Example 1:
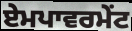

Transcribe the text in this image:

ਏਮਪਾਵਰਮੇਂਟ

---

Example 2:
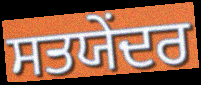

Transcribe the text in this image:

ਸਤਯੇਂਦਰ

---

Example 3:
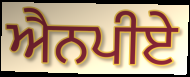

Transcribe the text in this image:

ਐਨਪੀਏ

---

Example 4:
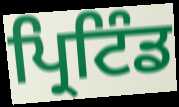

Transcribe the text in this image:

ਪ੍ਰਿਟਿੰਡ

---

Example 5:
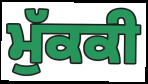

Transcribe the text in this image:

ਮੁੱਕਕੀ